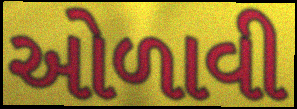
ઓળાવી